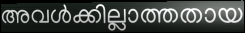
അവൾക്കില്ലാത്തതായ